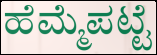
ಹೆಮ್ಮೆಪಟ್ಟೆ